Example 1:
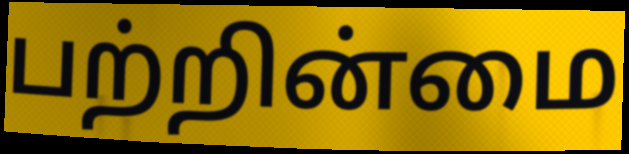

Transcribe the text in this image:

பற்றின்மை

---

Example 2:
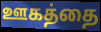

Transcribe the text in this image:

ஊகத்தை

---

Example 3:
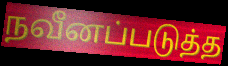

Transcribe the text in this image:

நவீனப்படுத்த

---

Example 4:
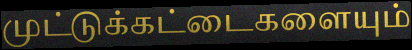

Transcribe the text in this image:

முட்டுக்கட்டைகளையும்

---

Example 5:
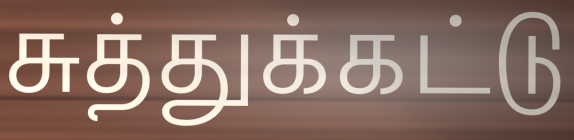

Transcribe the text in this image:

சுத்துக்கட்டு